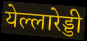
येल्लारेड्डी